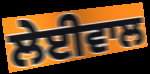
ਲੇਈਵਾਲ